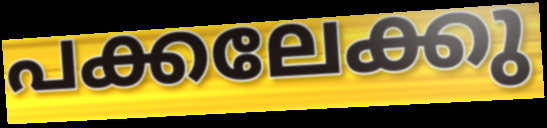
പക്കലേക്കു